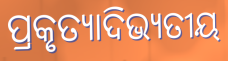
ପ୍ରକୃତ୍ୟାଦିଭ୍ୟତୀୟ